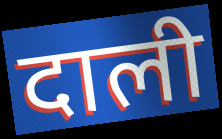
दाली